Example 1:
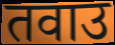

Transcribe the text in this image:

तवाउ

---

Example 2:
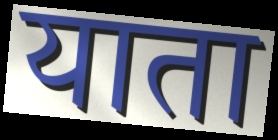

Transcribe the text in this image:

याता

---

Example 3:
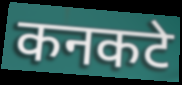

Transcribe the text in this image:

कनकटे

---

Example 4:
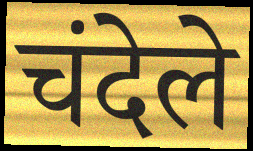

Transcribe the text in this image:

चंदेले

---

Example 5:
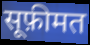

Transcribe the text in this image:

सूफ़ीमत